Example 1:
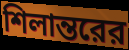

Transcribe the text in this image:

শিলান্তরের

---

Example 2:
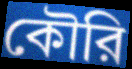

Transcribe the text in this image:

কৌরি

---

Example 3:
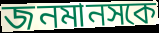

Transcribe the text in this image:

জনমানসকে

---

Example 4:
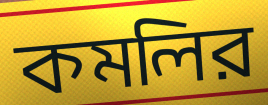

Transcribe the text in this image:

কমলির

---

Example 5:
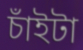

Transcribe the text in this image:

চাঁইটা